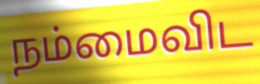
நம்மைவிட